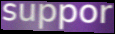
suppor